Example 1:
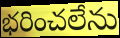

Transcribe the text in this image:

భరించలేను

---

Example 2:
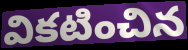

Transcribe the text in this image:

వికటించిన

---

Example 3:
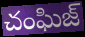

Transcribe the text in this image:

చంఘిజ్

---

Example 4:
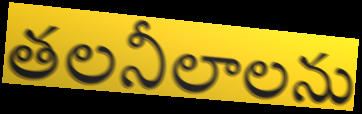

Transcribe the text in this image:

తలనీలాలను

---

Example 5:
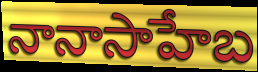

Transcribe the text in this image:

నానాసాహేబ